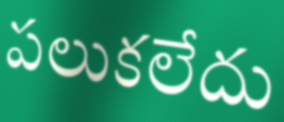
పలుకలేదు